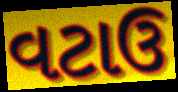
વટાઉ